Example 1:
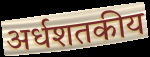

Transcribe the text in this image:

अर्धशतकीय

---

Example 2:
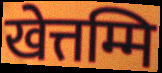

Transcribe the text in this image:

खेत्तम्मि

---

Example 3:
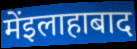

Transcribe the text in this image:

मेंइलाहाबाद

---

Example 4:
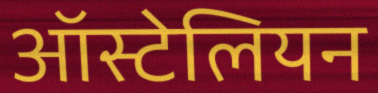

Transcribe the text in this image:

ऑस्टेलियन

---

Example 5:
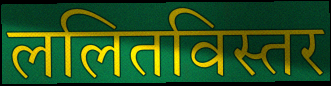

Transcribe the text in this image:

ललितविस्तर